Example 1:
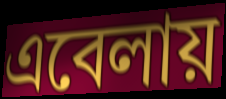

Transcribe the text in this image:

এবেলায়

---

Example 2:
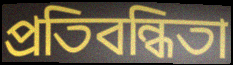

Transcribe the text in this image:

প্রতিবন্ধিতা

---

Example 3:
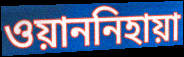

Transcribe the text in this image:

ওয়াননিহায়া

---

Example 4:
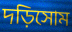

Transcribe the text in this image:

দড়িসোম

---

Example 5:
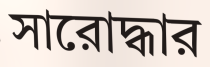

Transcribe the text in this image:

সারোদ্ধার